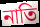
নাতি